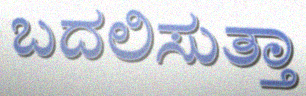
ಬದಲಿಸುತ್ತಾ